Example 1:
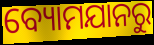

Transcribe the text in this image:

ବ୍ୟୋମଯାନରୁ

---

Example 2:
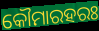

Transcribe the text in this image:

କୌମାରହରଃ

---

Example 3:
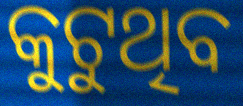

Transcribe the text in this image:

କୁଟୁଥିବ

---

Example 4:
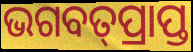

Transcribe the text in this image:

ଭଗବତ୍‌ପ୍ରାପ୍ତ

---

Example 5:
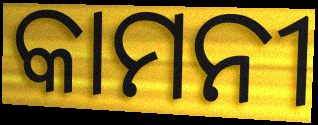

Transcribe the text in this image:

କାମନୀ